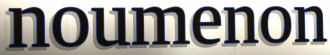
noumenon